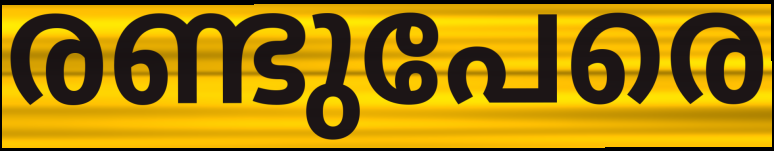
രണ്ടുപേരെ